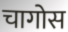
चागोस